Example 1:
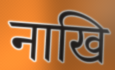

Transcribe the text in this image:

नाखि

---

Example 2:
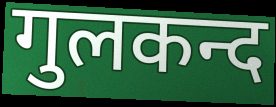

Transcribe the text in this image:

गुलकन्द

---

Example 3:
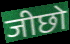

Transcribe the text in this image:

जीछो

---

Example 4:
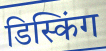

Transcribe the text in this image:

डिस्किंग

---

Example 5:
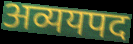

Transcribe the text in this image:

अव्ययपद